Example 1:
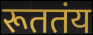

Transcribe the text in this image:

रूततंय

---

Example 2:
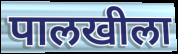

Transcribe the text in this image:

पालखीला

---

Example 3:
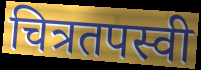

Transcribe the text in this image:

चित्रतपस्वी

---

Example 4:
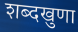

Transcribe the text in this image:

शब्दखुणा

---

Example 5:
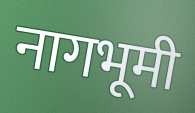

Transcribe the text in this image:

नागभूमी